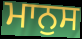
ਮਾਨੁਸ